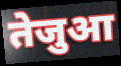
तेजुआ